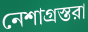
নেশাগ্রস্তরা